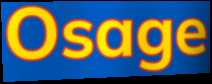
Osage